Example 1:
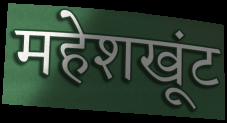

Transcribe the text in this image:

महेशखूंट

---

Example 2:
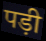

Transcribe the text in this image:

पड़ी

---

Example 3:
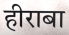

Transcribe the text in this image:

हीराबा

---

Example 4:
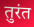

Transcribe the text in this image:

तुरंत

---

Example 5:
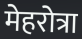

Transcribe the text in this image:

मेहरोत्रा